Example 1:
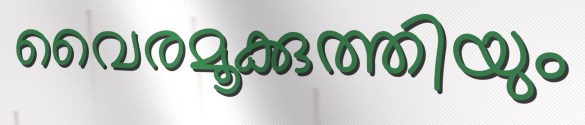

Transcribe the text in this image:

വൈരമൂക്കുത്തിയും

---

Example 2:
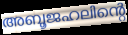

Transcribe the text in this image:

അബൂജഹലിന്റെ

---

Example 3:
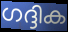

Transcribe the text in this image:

ഗദ്ദിക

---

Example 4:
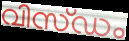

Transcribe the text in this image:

വിസ്ഡം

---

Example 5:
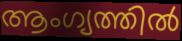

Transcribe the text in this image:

ആംഗ്യത്തിൽ